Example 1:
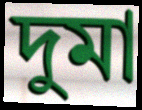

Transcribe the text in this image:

দুমা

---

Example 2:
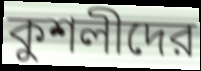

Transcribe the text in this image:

কুশলীদের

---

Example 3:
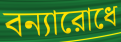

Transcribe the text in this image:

বন্যারোধে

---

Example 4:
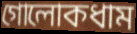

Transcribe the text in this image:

গোলোকধাম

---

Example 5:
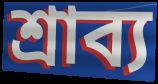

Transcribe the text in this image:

শ্রাব্য